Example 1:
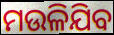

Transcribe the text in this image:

ମଉଳିଯିବ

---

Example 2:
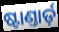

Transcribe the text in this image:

ଷ୍ଟାଣ୍ତାର୍ଡ଼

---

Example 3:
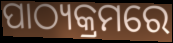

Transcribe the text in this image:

ପାଠ୍ୟକ୍ରମରେ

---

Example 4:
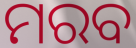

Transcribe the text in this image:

ମରବ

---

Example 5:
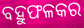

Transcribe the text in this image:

ବହୁଫଳକର